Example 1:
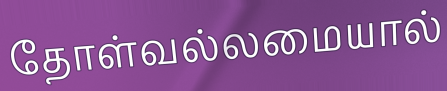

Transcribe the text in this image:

தோள்வல்லமையால்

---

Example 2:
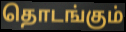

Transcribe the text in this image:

தொடங்கும்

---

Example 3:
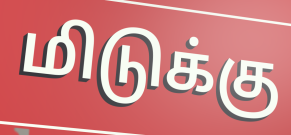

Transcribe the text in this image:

மிடுக்கு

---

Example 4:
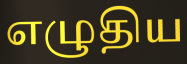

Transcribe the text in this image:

எழுதிய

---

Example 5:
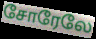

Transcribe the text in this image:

சோரேலே